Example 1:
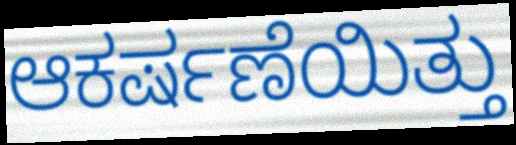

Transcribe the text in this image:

ಆಕರ್ಷಣೆಯಿತ್ತು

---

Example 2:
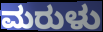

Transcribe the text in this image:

ಮರುಳು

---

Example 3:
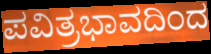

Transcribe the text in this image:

ಪವಿತ್ರಭಾವದಿಂದ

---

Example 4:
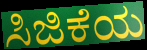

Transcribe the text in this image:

ಸಿಜಿಕೆಯ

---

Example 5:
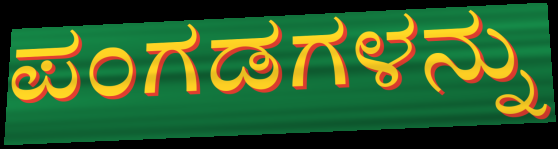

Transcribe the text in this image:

ಪಂಗಡಗಳನ್ನು